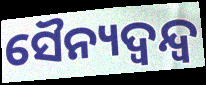
ସୈନ୍ୟଦ୍ୱନ୍ଦ୍ୱ